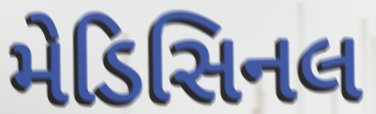
મેડિસિનલ